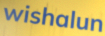
wishalun